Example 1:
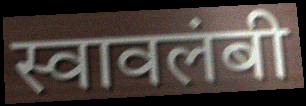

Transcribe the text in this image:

स्वावलंबी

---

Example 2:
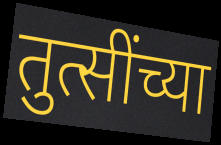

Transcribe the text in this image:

तुत्सींच्या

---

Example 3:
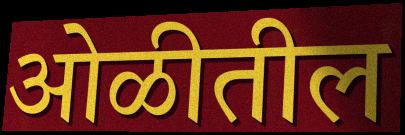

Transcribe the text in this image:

ओळीतील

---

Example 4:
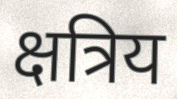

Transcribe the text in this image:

क्षत्रिय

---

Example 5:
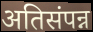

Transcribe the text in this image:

अतिसंपन्न